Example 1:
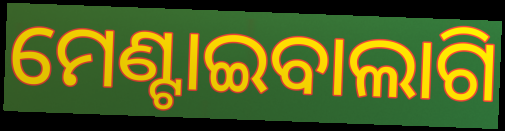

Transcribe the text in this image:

ମେଣ୍ଟାଇବାଲାଗି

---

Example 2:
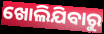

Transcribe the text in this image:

ଖୋଲିଯିବାରୁ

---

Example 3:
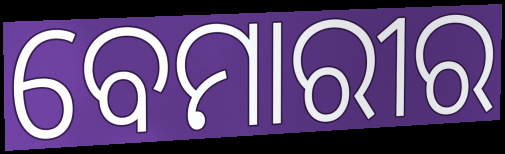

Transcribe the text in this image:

ବେମାରୀର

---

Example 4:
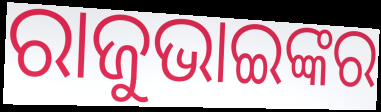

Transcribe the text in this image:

ରାଜୁଭାଇଙ୍କର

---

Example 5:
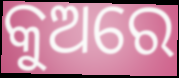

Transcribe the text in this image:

କୁଅରେ